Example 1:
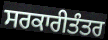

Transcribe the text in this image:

ਸਰਕਾਰੀਤੰਤਰ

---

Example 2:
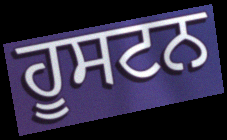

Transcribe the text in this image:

ਹੂਸਟਨ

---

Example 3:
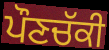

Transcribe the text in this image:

ਪੌਣਚੱਕੀ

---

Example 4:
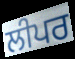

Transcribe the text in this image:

ਲੀਪਰ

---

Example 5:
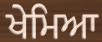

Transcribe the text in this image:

ਖੇਮਿਆ